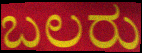
ಬಲರು